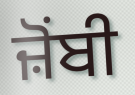
ਜ਼ੋਂਬੀ